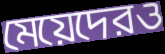
মেয়েদেরও